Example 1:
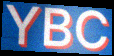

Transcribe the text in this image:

YBC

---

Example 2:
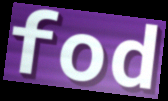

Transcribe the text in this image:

fod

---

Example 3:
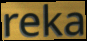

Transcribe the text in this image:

reka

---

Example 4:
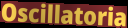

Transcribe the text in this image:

Oscillatoria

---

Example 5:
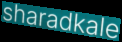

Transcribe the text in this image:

sharadkale